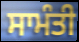
ਸਾਮੰਤੀ